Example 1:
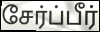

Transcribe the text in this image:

சேர்ப்பீர்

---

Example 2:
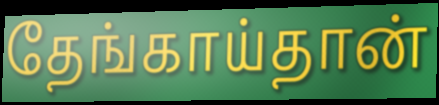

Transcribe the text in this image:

தேங்காய்தான்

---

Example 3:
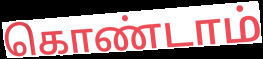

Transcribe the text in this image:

கொண்டாம்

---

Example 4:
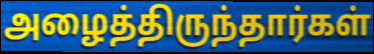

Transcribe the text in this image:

அழைத்திருந்தார்கள்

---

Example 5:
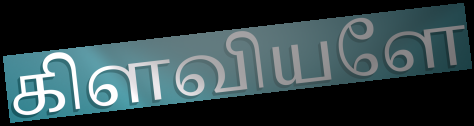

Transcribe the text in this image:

கிளவியளே